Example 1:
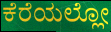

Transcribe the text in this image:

ಕೆರೆಯಲ್ಲೋ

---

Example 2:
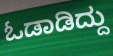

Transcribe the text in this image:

ಓಡಾಡಿದ್ದು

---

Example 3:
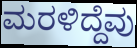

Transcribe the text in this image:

ಮರಳಿದ್ದೆವು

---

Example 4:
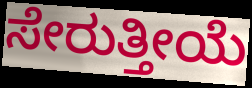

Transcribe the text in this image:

ಸೇರುತ್ತೀಯೆ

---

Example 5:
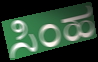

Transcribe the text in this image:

ಸಿಂಹ